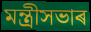
মন্ত্ৰীসভাৰ